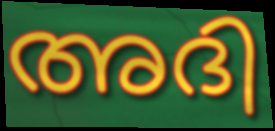
അദി